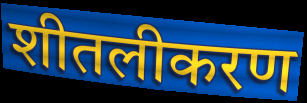
शीतलीकरण